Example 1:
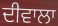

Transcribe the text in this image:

ਦੀਵਾਲਾ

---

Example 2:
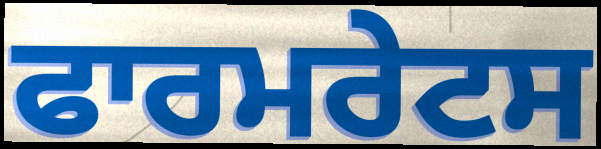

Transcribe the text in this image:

ਫਾਰਮਰੇਟਸ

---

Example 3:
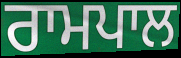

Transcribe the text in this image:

ਰਾਮਪਾਲ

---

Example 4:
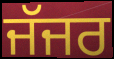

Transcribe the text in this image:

ਜੱਜਰ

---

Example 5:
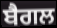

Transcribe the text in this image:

ਬੈਗਲ